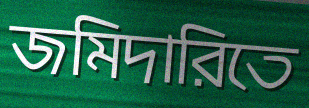
জমিদারিতে